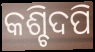
କଶ୍ଚିଦପି